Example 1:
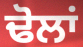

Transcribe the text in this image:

ਢੋਲਾਂ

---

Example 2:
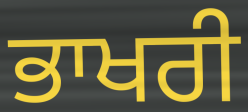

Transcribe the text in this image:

ਭਾਖਰੀ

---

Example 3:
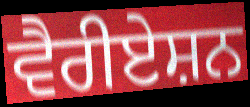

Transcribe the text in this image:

ਵੈਰੀਏਸ਼ਨ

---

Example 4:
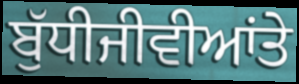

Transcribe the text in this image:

ਬੁੱਧੀਜੀਵੀਆਂਤੇ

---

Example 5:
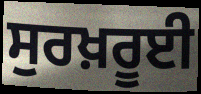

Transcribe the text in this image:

ਸੁਰਖ਼ਰੂਈ